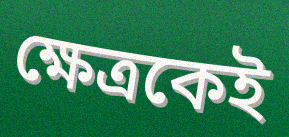
ক্ষেত্রকেই